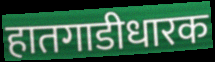
हातगाडीधारक